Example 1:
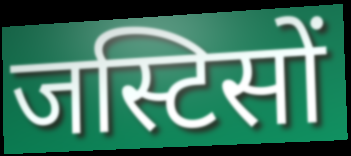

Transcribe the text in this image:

जस्टिसों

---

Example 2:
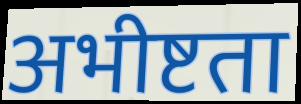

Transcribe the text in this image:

अभीष्टता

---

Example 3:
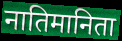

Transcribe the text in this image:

नातिमानिता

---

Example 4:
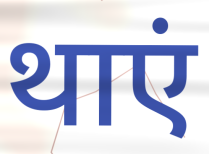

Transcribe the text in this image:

थाएं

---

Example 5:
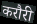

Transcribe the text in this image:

करौरी